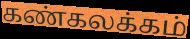
கண்கலக்கம்